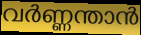
വർണ്ണന്താൻ